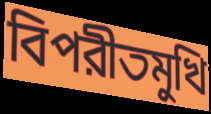
বিপরীতমুখি